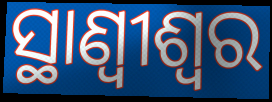
ସ୍ଥାଣ୍ୱୀଶ୍ଵର